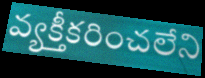
వ్యక్తీకరించలేని